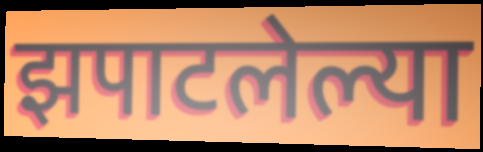
झपाटलेल्या